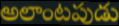
అలాంటపుడు